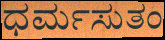
ಧರ್ಮಸುತಂ